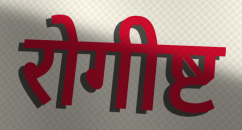
रोगीष्ट